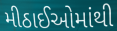
મીઠાઈઓમાંથી